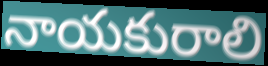
నాయకురాలి